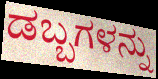
ಡಬ್ಬಗಳನ್ನು